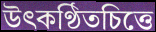
উৎকণ্ঠিতচিত্তে